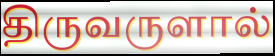
திருவருளால்